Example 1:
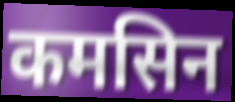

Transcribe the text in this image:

कमसिन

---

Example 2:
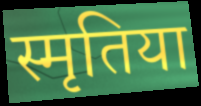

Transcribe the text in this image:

स्मृतिया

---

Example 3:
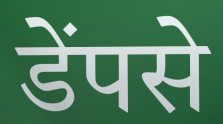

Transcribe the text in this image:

डेंपसे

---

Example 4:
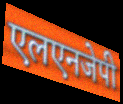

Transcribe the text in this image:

एलएनजेपी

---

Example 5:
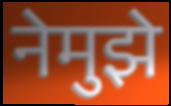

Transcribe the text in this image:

नेमुझे